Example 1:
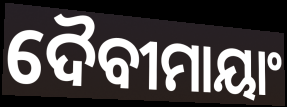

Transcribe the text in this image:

ଦୈବୀମାୟାଂ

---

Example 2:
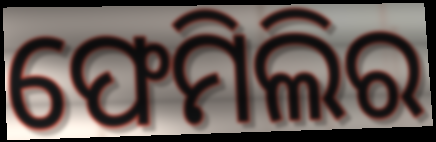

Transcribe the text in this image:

ଫେମିଲିର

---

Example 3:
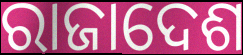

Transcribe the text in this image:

ରାଜାଦେଶ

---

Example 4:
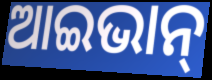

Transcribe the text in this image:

ଆଇଭାନ୍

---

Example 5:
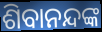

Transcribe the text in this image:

ଶିବାନନ୍ଦଙ୍କ